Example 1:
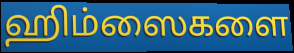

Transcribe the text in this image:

ஹிம்ஸைகளை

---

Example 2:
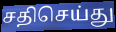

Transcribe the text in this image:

சதிசெய்து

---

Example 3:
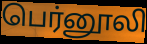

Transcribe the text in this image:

பெர்னூலி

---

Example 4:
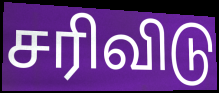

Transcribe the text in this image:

சரிவிடு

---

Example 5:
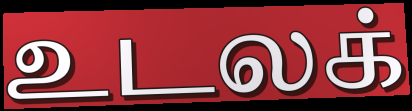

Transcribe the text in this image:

உடலக்